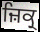
ਜ਼ਿਕ੍ਰ